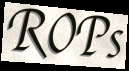
ROPs